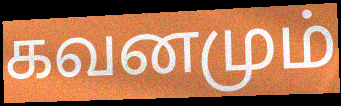
கவனமும்